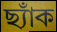
ছ্যাঁক